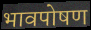
भावपोषण